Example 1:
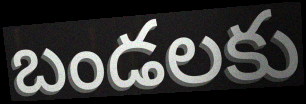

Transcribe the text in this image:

బండలకు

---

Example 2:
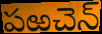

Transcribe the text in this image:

పఱచెన్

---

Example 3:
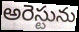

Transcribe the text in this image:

అరెస్టును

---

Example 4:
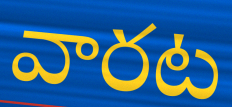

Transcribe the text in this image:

వారట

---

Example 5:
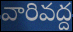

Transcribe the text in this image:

వారివద్ద